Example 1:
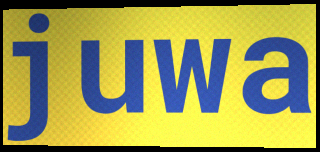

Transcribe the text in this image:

juwa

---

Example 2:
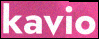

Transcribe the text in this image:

kavio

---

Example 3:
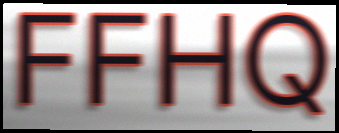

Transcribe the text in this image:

FFHQ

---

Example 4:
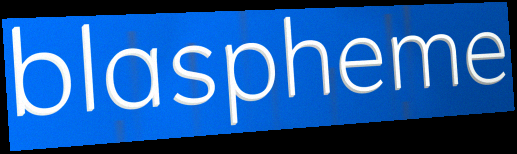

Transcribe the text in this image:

blaspheme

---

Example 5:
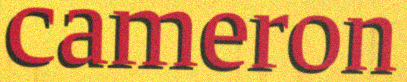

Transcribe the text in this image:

cameron